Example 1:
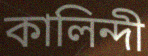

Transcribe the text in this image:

কালিন্দী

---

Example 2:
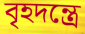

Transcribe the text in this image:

বৃহদন্ত্রে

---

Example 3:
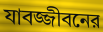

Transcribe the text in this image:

যাবজ্জীবনের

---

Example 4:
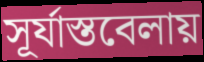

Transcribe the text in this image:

সূর্যাস্তবেলায়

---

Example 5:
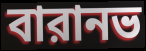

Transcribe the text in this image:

বারানভ